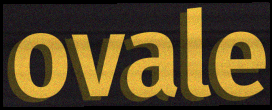
ovale